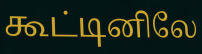
கூட்டினிலே